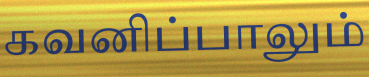
கவனிப்பாலும்